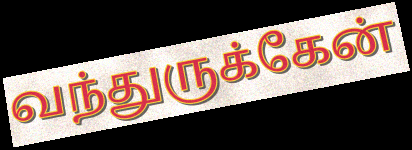
வந்துருக்கேன்